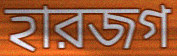
হারজগ